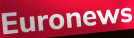
Euronews